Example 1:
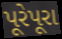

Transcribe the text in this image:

પૂરેપૂરા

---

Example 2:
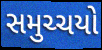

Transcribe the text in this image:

સમુચ્ચયો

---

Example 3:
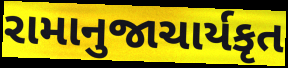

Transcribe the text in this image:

રામાનુજાચાર્યકૃત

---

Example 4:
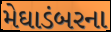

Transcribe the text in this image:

મેઘાડંબરના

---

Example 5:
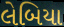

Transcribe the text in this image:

લેબિયા